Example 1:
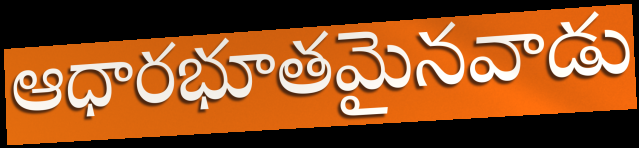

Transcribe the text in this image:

ఆధారభూతమైనవాడు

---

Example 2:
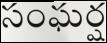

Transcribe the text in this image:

సంఘర్ష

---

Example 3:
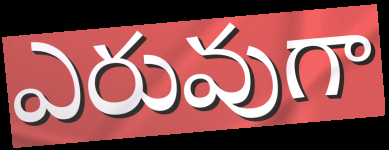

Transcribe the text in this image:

ఎరువుగా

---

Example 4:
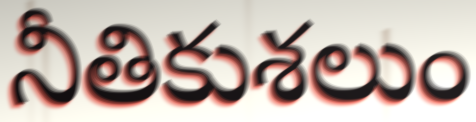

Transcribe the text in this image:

నీతికుశలుం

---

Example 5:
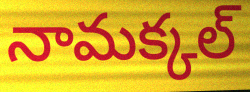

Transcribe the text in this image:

నామక్కల్